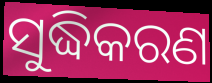
ସୁଦ୍ଧିକରଣ